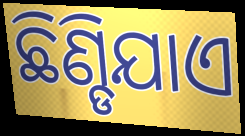
ଛିଣ୍ଡିଯାଏ